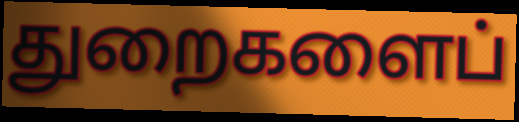
துறைகளைப்